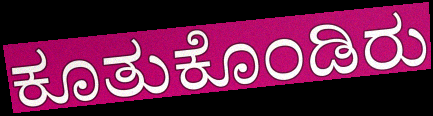
ಕೂತುಕೊಂಡಿರು